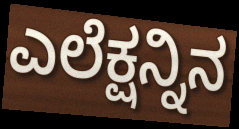
ಎಲೆಕ್ಷನ್ನಿನ